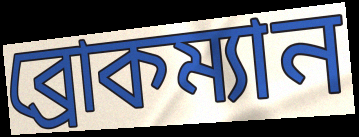
ব্রোকম্যান